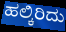
ಹಲ್ಕಿರಿದು